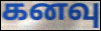
கனவு